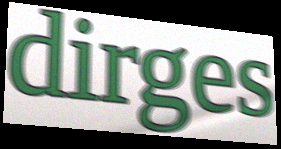
dirges